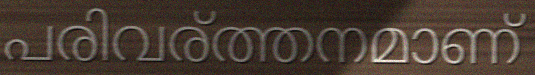
പരിവര്ത്തനമാണ്